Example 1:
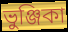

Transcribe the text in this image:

ভুঞ্জিকা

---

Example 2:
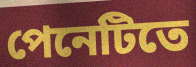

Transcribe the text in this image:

পেনেটিতে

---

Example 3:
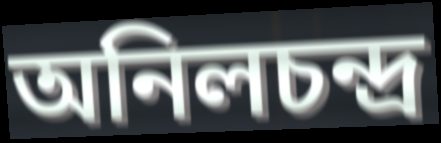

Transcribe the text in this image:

অনিলচন্দ্র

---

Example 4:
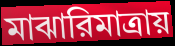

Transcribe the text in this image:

মাঝারিমাত্রায়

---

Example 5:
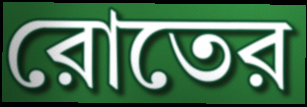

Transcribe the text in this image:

রোতের